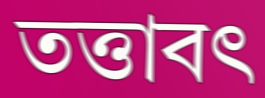
তত্তাবৎ